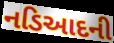
નડિઆદની